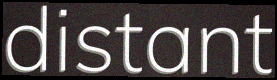
distant